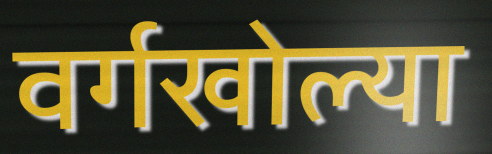
वर्गखोल्या